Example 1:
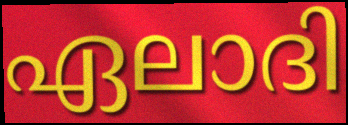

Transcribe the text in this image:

ഏലാദി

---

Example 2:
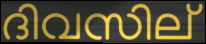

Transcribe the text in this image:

ദിവസില്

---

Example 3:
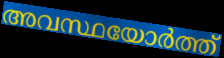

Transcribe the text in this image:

അവസ്ഥയോർത്ത്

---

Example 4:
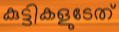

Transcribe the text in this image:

കുട്ടികളുടേത്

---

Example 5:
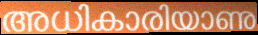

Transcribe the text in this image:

അധികാരിയാണു